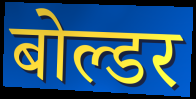
बोल्डर